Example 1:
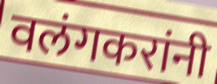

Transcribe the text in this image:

वलंगकरांनी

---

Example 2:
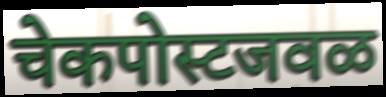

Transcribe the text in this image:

चेकपोस्टजवळ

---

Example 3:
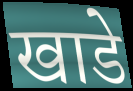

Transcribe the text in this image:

खाडे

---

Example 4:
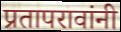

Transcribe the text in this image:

प्रतापरावांनी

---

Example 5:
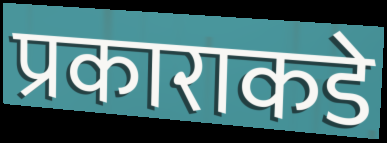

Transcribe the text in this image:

प्रकाराकडे